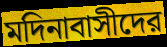
মদিনাবাসীদের